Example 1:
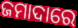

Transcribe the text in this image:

ଜମାଦାରେ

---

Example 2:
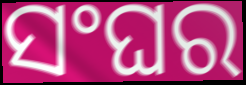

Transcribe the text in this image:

ସଂଘର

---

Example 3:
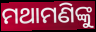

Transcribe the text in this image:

ମଥାମଣିଙ୍କୁ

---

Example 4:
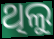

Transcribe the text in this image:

ଥିଲୁ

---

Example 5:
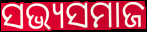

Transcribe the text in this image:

ସଭ୍ୟସମାଜ